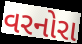
વરનોરા